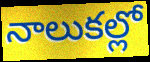
నాలుకల్లో